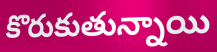
కొరుకుతున్నాయి